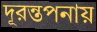
দূরন্তপনায়